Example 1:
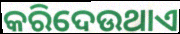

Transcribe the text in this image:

କରିଦେଉଥାଏ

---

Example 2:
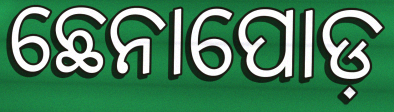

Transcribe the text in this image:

ଛେନାପୋଡ଼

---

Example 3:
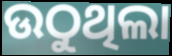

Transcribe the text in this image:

ଉଠୁଥିଲା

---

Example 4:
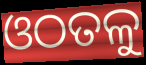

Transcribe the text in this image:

ଓଠତଳୁ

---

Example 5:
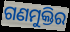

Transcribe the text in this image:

ଗଣମୁକ୍ତିର